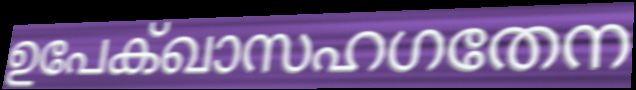
ഉപേക്ഖാസഹഗതേന